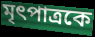
মৃৎপাত্রকে